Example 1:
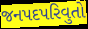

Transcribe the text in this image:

જનપદપરિવુતો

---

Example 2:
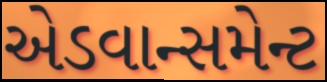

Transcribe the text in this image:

એડવાન્સમેન્ટ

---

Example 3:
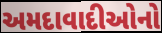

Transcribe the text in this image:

અમદાવાદીઓનો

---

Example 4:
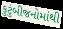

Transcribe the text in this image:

કુટુંબીજનોમાંથી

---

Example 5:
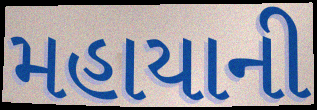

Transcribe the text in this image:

મહાયાની